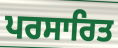
ਪਰਸਾਰਿਤ